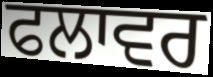
ਫਲਾਵਰ